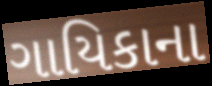
ગાયિકાના